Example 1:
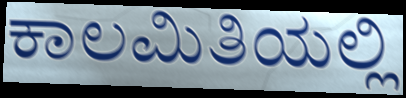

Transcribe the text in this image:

ಕಾಲಮಿತಿಯಲ್ಲಿ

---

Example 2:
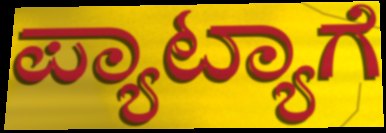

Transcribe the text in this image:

ಪ್ಯಾಟ್ಯಾಗೆ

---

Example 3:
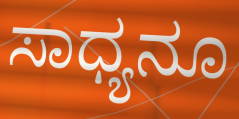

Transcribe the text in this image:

ಸಾಧ್ಯನೂ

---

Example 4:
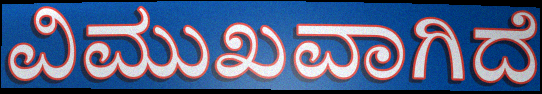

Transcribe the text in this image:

ವಿಮುಖವಾಗಿದೆ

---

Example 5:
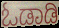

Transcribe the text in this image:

ಓಡಾಡಿ